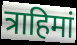
त्राहिमां